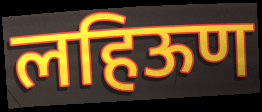
लहिऊण